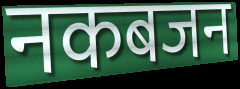
नकबजन